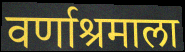
वर्णाश्रमाला